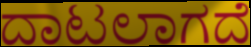
ದಾಟಲಾಗದೆ